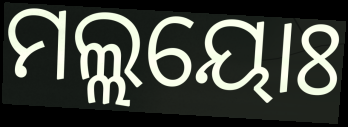
ମଲ୍ଲୟୋଃ